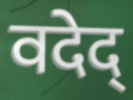
वदेद्